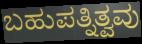
ಬಹುಪತ್ನಿತ್ವವು